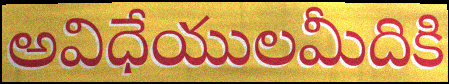
అవిధేయులమీదికి